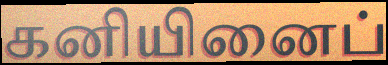
கனியினைப்